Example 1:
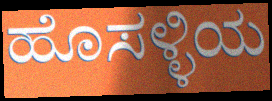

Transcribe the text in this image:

ಹೊಸಳ್ಳಿಯ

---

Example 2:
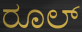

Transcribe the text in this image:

ರೂಲ್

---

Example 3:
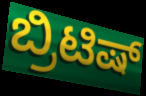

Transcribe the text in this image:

ಬ್ರಿಟಿಷ್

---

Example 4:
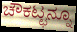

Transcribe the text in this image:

ಚೌಕಟ್ಟನ್ನೂ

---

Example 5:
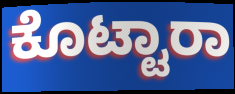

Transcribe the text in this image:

ಕೊಟ್ಟಾರಾ